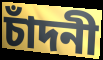
চাঁদনী